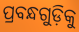
ପ୍ରବନ୍ଧଗୁଡ଼ିକୁ